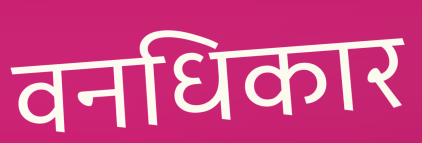
वनधिकार